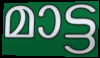
മാട്ട